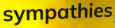
sympathies